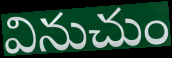
వినుచుం